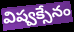
విష్వక్సేనం